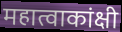
महात्वाकांक्षी